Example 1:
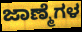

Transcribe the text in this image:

ಜಾಣ್ಮೆಗಳ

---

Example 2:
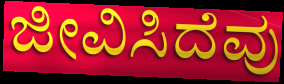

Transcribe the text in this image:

ಜೀವಿಸಿದೆವು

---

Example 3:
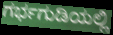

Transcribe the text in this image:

ಗರ್ಭಗುಡಿಯಲ್ಲಿ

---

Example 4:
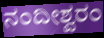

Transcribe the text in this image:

ನಂದೀಶ್ವರಂ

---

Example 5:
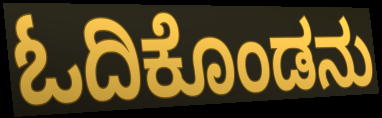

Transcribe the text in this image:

ಓದಿಕೊಂಡನು